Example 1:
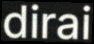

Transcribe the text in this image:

dirai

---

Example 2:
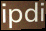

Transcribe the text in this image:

ipdi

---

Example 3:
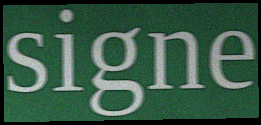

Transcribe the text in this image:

signe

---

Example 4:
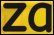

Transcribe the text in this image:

za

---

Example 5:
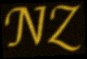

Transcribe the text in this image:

NZ